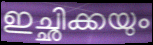
ഇച്ഛിക്കയും